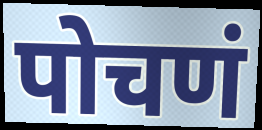
पोचणं